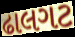
ઢાલગટ